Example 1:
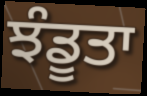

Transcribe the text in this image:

ਝੰਡੂਤਾ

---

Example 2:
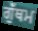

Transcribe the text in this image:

ਗੁੱਥਮ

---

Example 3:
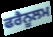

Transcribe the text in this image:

ਫਰੈਨੂਲਮ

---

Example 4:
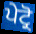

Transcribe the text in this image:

ਪੇਟ੍ਰੋ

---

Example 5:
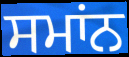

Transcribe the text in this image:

ਸਮਾਂਨ